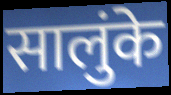
सालुंके